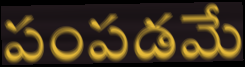
పంపడమే